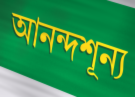
আনন্দশূন্য